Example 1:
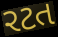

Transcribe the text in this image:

રટત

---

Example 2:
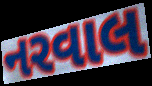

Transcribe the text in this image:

નરવાલ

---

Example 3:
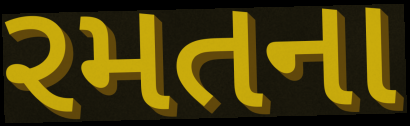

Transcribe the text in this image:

રમતના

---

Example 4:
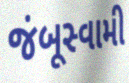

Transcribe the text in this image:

જંબૂસ્વામી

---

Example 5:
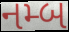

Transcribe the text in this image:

નમ્બ